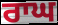
ਰਾਘ